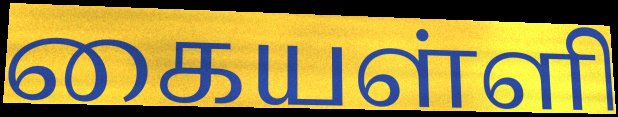
கையள்ளி